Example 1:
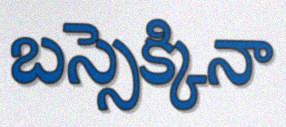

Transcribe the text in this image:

బస్సెక్కినా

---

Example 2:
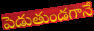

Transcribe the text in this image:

పెడుతుండగానే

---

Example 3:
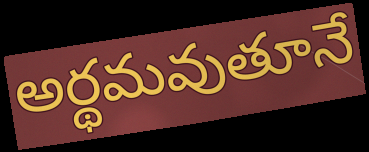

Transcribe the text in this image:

అర్థమవుతూనే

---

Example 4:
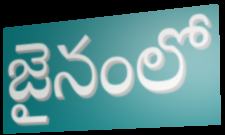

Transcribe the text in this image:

జైనంలో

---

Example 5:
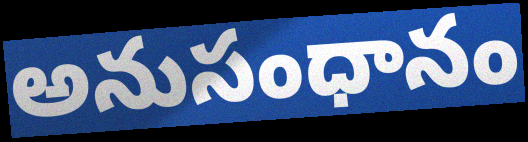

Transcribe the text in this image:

అనుసంధానం